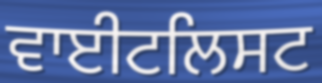
ਵਾਈਟਲਿਸਟ